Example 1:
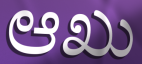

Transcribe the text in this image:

ಆಖು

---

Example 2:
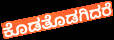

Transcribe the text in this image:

ಕೊಡತೊಡಗಿದರೆ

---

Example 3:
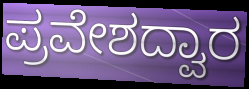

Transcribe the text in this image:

ಪ್ರವೇಶದ್ವಾರ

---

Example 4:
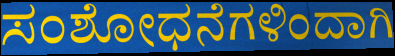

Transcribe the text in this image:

ಸಂಶೋಧನೆಗಳಿಂದಾಗಿ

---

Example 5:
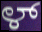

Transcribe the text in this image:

ಳ್